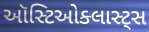
ઑસ્ટિઓક્લાસ્ટ્સ